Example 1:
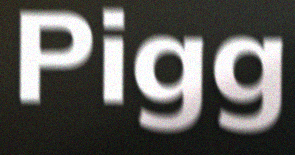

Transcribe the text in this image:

Pigg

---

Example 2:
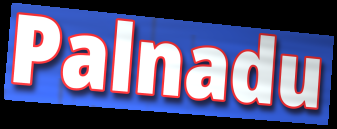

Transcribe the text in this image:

Palnadu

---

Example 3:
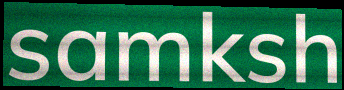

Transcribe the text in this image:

samksh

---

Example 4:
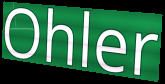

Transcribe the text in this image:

Ohler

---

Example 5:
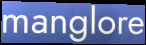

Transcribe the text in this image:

manglore